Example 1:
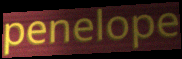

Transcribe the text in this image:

penelope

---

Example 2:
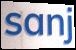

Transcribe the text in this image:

sanj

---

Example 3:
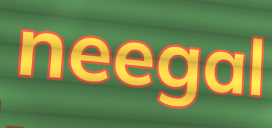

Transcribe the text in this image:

neegal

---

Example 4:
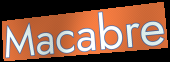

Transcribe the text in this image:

Macabre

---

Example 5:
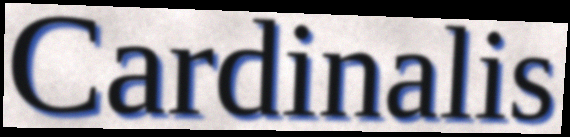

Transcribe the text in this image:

Cardinalis